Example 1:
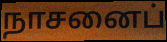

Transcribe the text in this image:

நாசனைப்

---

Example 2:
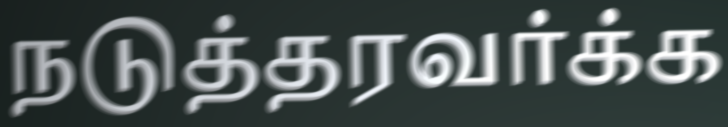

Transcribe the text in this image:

நடுத்தரவர்க்க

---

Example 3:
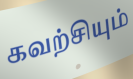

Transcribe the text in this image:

கவற்சியும்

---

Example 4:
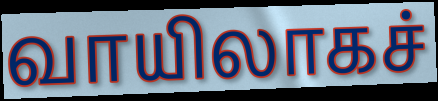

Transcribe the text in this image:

வாயிலாகச்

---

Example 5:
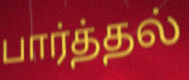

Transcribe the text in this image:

பார்த்தல்